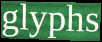
glyphs